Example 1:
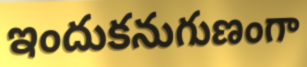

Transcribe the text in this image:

ఇందుకనుగుణంగా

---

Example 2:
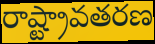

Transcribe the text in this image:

రాష్ట్రావతరణ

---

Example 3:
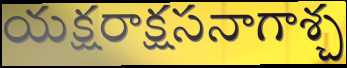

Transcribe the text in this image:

యక్షరాక్షసనాగాశ్చ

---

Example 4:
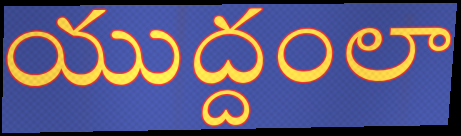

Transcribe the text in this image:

యుద్దంలా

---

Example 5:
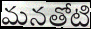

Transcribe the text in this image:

మనతోటి